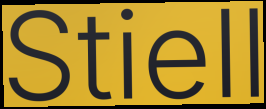
Stiell